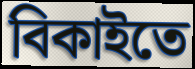
বিকাইতে